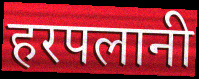
हरपलानी